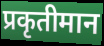
प्रकृतीमान